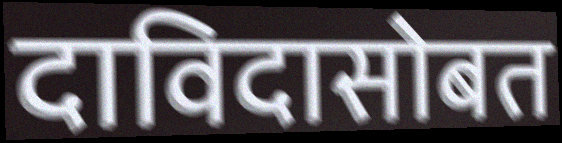
दाविदासोबत